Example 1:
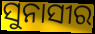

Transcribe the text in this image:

ସୁନାସୀର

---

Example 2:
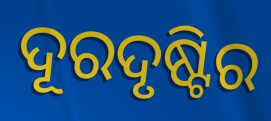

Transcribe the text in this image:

ଦୂରଦୃଷ୍ଟିର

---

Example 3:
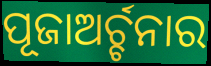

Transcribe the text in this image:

ପୂଜାଅର୍ଚ୍ଚନାର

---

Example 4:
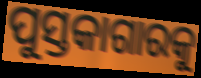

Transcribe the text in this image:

ପୁସ୍ତକାଗାରକୁ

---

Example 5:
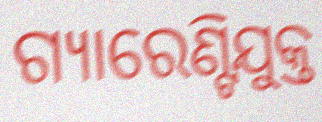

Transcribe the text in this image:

ଗ୍ୟାରେଣ୍ଟିଯୁକ୍ତ